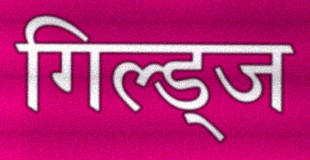
गिल्ड्ज